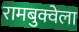
रामबुक्वेला